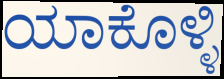
ಯಾಕೊಳ್ಳಿ